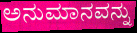
ಅನುಮಾನವನ್ನು